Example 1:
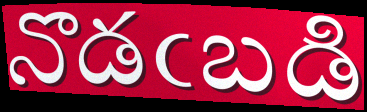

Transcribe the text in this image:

నొడఁబడి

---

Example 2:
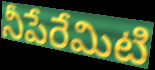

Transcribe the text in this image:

నీపేరేమిటి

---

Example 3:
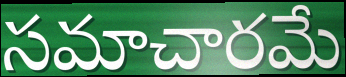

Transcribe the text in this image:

సమాచారమే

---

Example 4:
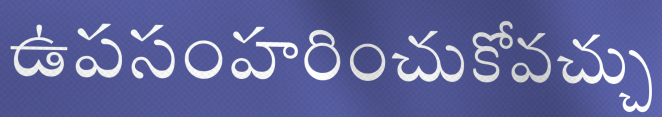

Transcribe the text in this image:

ఉపసంహరించుకోవచ్చు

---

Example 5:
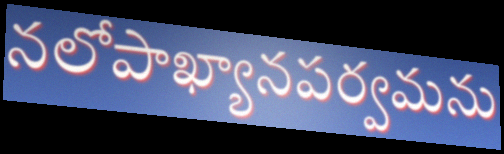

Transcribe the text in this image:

నలోపాఖ్యానపర్వమను